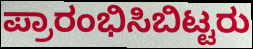
ಪ್ರಾರಂಭಿಸಿಬಿಟ್ಟರು